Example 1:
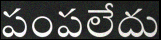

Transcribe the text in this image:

పంపలేదు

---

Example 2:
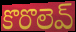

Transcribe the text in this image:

కొరొలెవ్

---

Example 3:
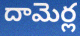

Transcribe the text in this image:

దామెర్ల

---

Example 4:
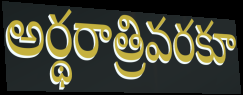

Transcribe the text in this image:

అర్థరాత్రివరకూ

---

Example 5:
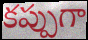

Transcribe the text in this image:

కప్పుగా